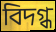
বিদগ্ধ